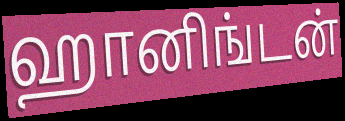
ஹானிங்டன்